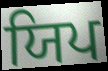
ਯਿਪ